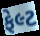
ફેલ્ટ